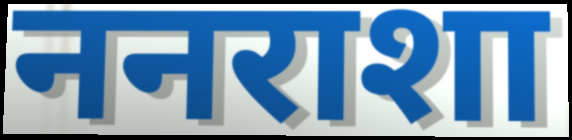
ननराशा